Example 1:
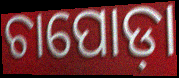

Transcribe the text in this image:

ଚାପୋଡ଼ା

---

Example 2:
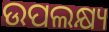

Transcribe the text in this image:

ଉପଲକ୍ଷ୍ୟ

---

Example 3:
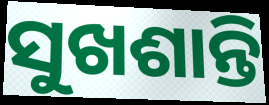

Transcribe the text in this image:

ସୁଖଶାନ୍ତି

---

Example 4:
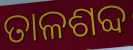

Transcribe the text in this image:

ତାଳଶବ୍ଦ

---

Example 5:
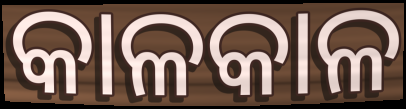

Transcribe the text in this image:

କାଳକାଳ